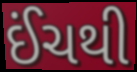
ઈંચથી